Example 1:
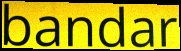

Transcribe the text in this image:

bandar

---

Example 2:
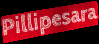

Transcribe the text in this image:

Pillipesara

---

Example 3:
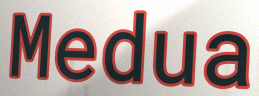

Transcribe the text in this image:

Medua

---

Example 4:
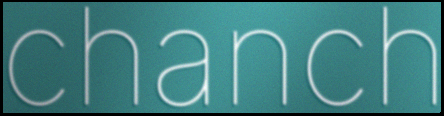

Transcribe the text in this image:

chanch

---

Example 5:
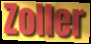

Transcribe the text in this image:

Zoller